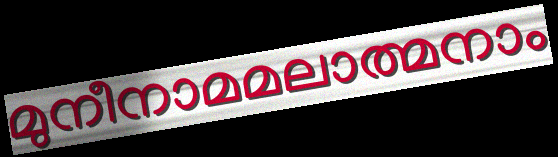
മുനീനാമമലാത്മനാം